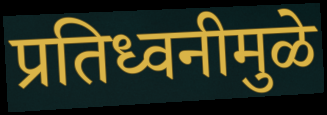
प्रतिध्वनीमुळे